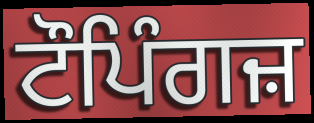
ਟੌਪਿੰਗਜ਼